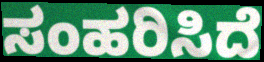
ಸಂಹರಿಸಿದೆ